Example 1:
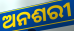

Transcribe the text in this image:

ଅନଶରୀ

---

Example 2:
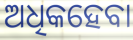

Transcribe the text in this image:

ଅଧିକହେବା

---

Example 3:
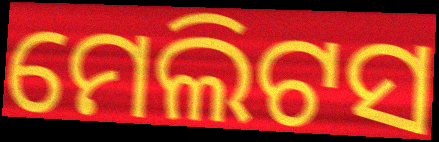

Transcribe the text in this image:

ମେଲିଟସ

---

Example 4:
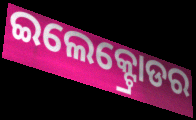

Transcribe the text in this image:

ଇଲେକ୍ଟ୍ରୋଡର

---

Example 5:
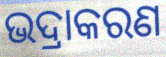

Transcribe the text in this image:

ଭଦ୍ରାକରଣ